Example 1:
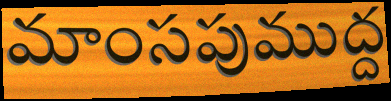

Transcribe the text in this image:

మాంసపుముద్ద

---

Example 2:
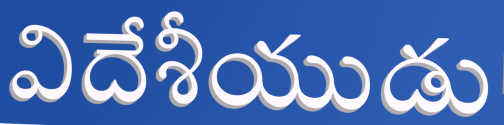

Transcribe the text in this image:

విదేశీయుడు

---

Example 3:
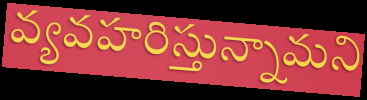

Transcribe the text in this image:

వ్యవహరిస్తున్నామని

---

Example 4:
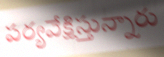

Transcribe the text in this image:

పర్యవేక్షిస్తున్నారు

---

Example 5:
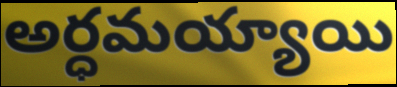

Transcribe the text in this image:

అర్ధమయ్యాయి